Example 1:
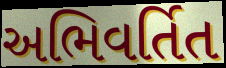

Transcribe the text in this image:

અભિવર્તિત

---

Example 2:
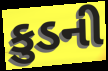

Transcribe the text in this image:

કુડની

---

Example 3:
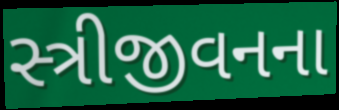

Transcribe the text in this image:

સ્ત્રીજીવનના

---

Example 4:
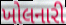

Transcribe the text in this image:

ખોલનારી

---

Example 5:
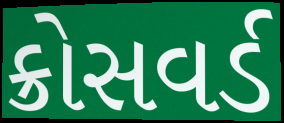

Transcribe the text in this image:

ક્રોસવર્ડ